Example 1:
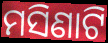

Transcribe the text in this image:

ମସିଣାଟି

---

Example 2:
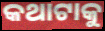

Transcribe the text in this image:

କଥାଟାକୁ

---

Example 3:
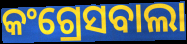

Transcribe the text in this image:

କଂଗ୍ରେସବାଲା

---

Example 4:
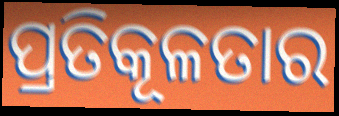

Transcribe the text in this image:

ପ୍ରତିକୂଳତାର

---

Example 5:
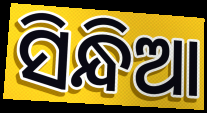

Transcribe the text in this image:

ସିନ୍ଧିଆ